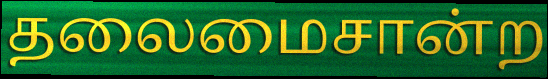
தலைமைசான்ற